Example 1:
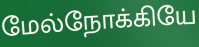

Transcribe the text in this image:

மேல்நோக்கியே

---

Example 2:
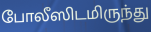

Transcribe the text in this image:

போலீஸிடமிருந்து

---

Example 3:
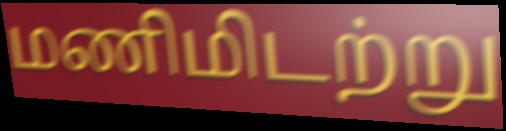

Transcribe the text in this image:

மணிமிடற்று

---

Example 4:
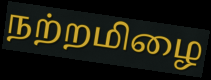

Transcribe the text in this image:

நற்றமிழை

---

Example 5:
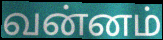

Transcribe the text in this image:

வன்னம்